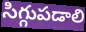
సిగ్గుపడాలి